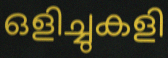
ഒളിച്ചുകളി